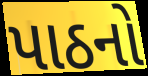
પાઠનો